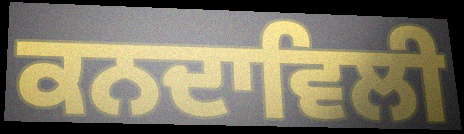
ਕਨਦਾਵਿਲੀ